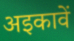
अइकावें